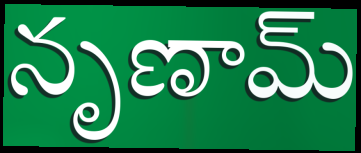
నృణామ్